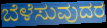
ಬೆಳೆಸುವುದರ